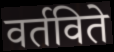
वर्तविते